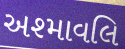
અશ્માવલિ